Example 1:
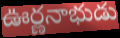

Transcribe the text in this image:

ఊర్ణనాభుడు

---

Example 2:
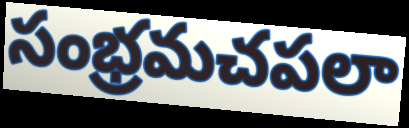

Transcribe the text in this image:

సంభ్రమచపలా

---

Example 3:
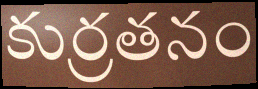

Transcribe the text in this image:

కుర్రతనం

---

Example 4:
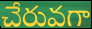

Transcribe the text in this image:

చేరువగా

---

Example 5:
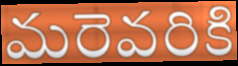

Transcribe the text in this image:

మరెవరికి